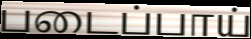
படைப்பாய்